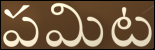
పమిట